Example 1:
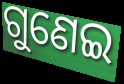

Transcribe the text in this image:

ଗୁଣେଇ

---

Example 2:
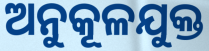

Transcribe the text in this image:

ଅନୁକୂଳଯୁକ୍ତ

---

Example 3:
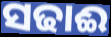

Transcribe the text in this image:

ସଢାଈ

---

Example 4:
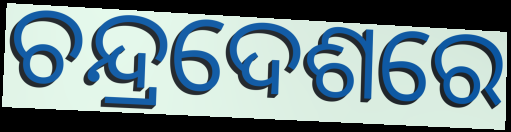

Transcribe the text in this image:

ଚନ୍ଦ୍ରଦେଶରେ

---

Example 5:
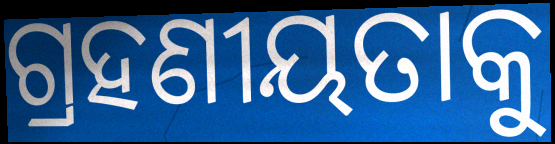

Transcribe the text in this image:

ଗ୍ରହଣୀୟତାକୁ